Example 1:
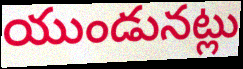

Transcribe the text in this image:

యుండునట్లు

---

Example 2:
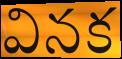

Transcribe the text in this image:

వినక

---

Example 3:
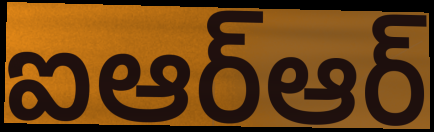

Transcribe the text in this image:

ఐఆర్ఆర్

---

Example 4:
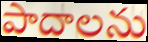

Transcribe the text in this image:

పాదాలను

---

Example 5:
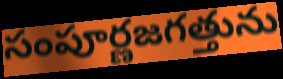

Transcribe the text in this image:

సంపూర్ణజగత్తును